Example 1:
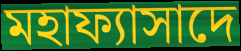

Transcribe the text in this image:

মহাফ্যাসাদে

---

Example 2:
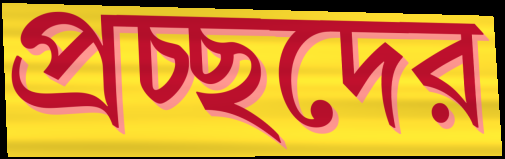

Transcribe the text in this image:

প্রচ্ছদের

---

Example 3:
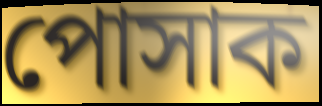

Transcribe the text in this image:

পোসাক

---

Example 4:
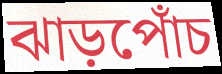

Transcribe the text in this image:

ঝাড়পোঁচ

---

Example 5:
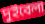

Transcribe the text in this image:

দুইবেলা